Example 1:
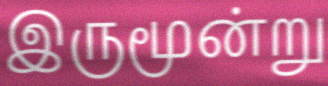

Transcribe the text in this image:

இருமூன்று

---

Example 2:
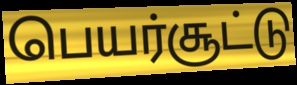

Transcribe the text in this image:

பெயர்சூட்டு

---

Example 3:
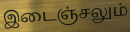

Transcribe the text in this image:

இடைஞ்சலும்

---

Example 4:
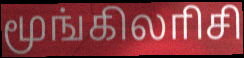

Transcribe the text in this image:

மூங்கிலரிசி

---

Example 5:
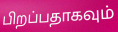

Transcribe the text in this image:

பிறப்பதாகவும்